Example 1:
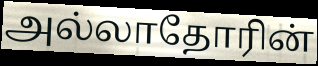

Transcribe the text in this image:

அல்லாதோரின்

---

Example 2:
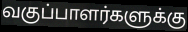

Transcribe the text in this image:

வகுப்பாளர்களுக்கு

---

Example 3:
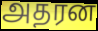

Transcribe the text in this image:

அதரன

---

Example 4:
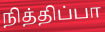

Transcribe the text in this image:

நித்திப்பா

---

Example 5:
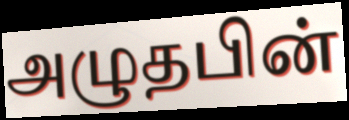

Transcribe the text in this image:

அழுதபின்